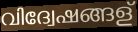
വിദ്വേഷങ്ങള്